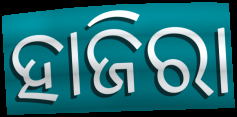
ହାଜିରା